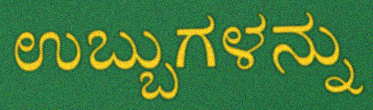
ಉಬ್ಬುಗಳನ್ನು